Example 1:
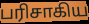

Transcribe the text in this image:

பரிசாகிய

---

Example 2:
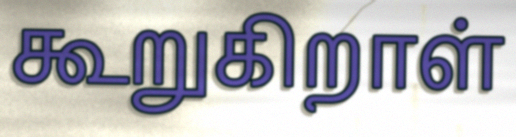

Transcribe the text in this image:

கூறுகிறாள்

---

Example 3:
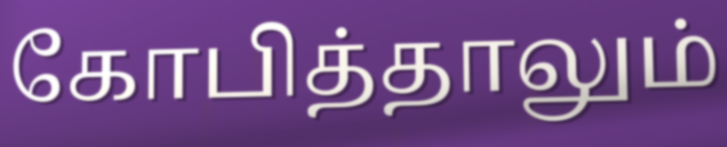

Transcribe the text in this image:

கோபித்தாலும்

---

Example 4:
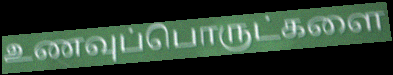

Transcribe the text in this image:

உணவுப்பொருட்களை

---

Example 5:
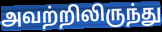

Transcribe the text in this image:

அவற்றிலிருந்து